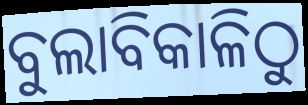
ବୁଲାବିକାଳିଠୁ